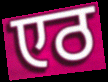
एठ